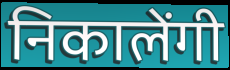
निकालेंगी